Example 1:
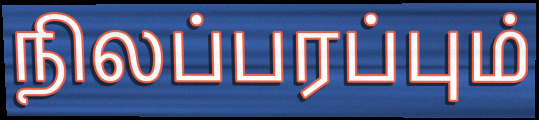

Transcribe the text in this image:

நிலப்பரப்பும்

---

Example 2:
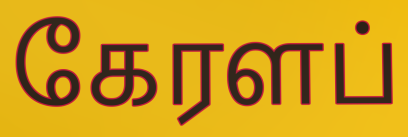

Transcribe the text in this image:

கேரளப்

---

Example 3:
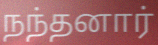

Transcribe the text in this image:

நந்தனார்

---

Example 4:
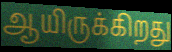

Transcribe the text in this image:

ஆயிருக்கிறது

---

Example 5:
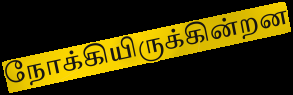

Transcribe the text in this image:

நோக்கியிருக்கின்றன